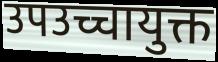
उपउच्चायुक्त